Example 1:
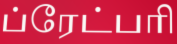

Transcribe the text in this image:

ப்ரேட்பரி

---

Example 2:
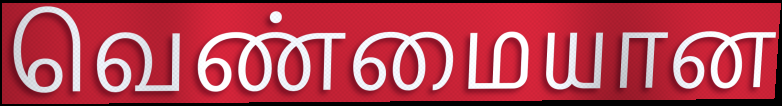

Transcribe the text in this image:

வெண்மையான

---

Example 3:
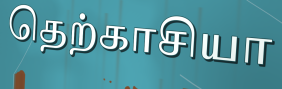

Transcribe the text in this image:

தெற்காசியா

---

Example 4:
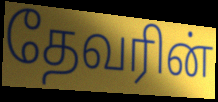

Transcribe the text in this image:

தேவரின்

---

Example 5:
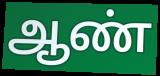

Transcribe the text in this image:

ஆண்